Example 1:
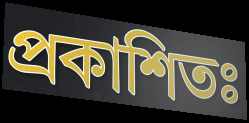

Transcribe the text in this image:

প্রকাশিতঃ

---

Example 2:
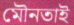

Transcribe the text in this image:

মৌনতাই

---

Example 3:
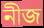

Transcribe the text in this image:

নীজ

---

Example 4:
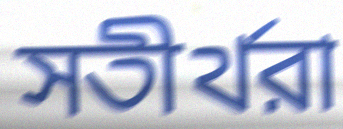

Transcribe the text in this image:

সতীর্থরা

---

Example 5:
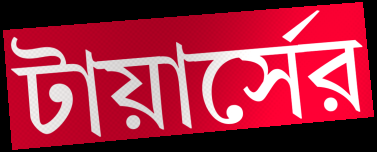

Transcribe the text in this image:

টায়ার্সের